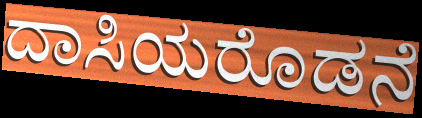
ದಾಸಿಯರೊಡನೆ